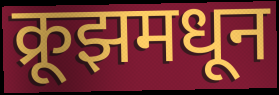
क्रूझमधून